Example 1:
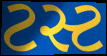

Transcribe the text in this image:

ટસ્ટ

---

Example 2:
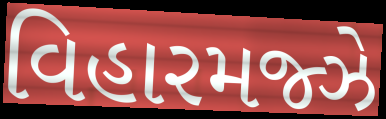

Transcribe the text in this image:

વિહારમજ્ઝે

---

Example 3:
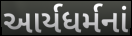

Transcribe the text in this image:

આર્યધર્મનાં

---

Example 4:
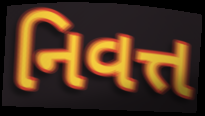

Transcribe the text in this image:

નિવત્ત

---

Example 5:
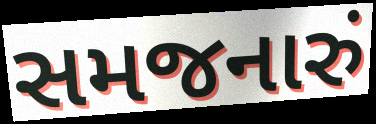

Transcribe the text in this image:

સમજનારું